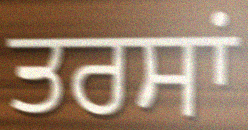
ਤਰਸਾਂ